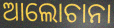
ଆଲୋଚାନା